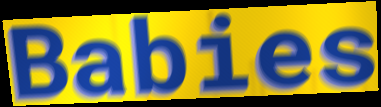
Babies